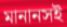
মানানসই